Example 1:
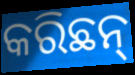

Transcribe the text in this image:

କରିଛନ୍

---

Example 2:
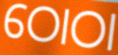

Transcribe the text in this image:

ଠୋଠା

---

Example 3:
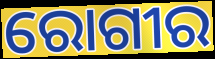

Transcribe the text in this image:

ରୋଗୀର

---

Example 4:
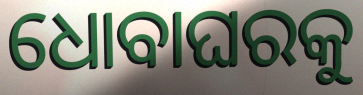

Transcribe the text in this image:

ଧୋବାଘରକୁ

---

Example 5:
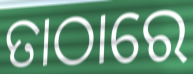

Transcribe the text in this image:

ତାଠାରେ